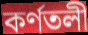
কর্ণতলী